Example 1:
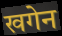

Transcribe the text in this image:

खगेन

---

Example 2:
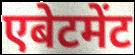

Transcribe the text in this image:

एबेटमेंट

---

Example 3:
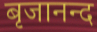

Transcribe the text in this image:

बृजानन्द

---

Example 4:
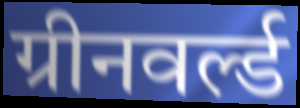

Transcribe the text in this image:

ग्रीनवर्ल्ड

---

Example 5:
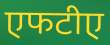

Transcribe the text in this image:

एफटीए